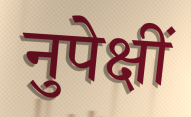
नुपेक्षीं